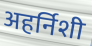
अहर्निशी